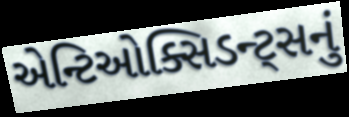
એન્ટિઓક્સિડન્ટ્સનું